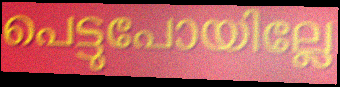
പെട്ടുപോയില്ലേ